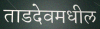
ताडदेवमधील